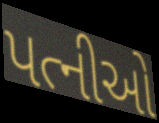
પત્નીઓ